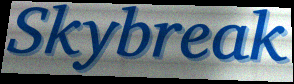
Skybreak